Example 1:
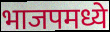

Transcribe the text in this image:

भाजपमध्ये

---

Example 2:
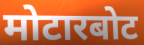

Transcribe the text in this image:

मोटारबोट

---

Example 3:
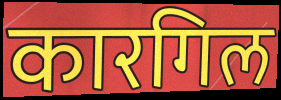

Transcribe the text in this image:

कारगिल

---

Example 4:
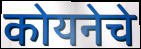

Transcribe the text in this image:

कोयनेचे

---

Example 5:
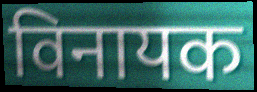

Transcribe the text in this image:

विनायक